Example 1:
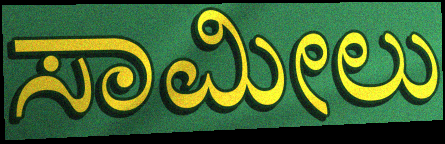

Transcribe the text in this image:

ಸಾಮೀಲು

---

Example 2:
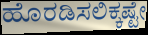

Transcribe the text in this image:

ಹೊರಡಿಸಲಿಕ್ಕಷ್ಟೇ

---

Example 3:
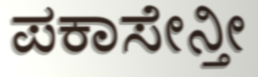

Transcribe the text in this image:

ಪಕಾಸೇನ್ತೀ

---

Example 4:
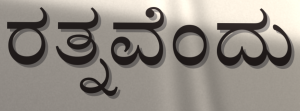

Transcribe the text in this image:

ರತ್ನವೆಂದು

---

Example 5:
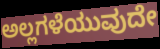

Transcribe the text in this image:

ಅಲ್ಲಗಳೆಯುವುದೇ